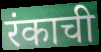
रंकाची